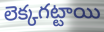
లెక్కగట్టాయి